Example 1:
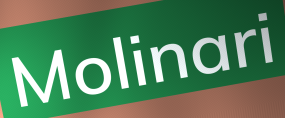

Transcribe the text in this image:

Molinari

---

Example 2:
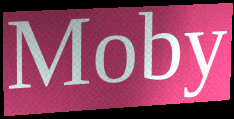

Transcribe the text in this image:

Moby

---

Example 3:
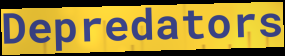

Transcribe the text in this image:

Depredators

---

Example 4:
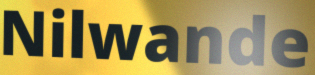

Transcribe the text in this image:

Nilwande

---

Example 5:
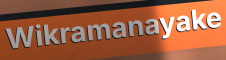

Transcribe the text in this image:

Wikramanayake